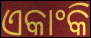
ଏକାଂକି